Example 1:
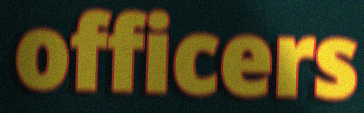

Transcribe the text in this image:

officers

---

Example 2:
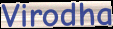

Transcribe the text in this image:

Virodha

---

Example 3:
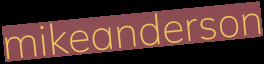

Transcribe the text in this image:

mikeanderson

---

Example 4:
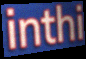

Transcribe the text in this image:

inthi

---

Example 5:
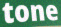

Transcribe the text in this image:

tone